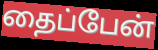
தைப்பேன்